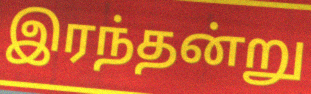
இரந்தன்று